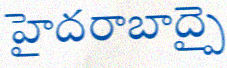
హైదరాబాద్పై